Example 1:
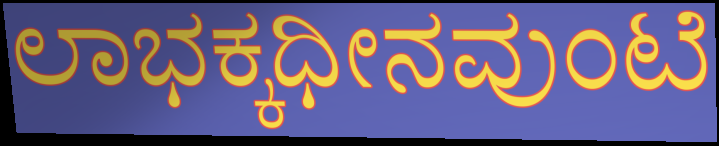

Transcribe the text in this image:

ಲಾಭಕ್ಕಧೀನವುಂಟೆ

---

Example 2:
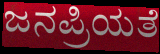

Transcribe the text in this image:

ಜನಪ್ರಿಯತೆ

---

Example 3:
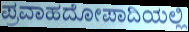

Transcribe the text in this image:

ಪ್ರವಾಹದೋಪಾದಿಯಲ್ಲಿ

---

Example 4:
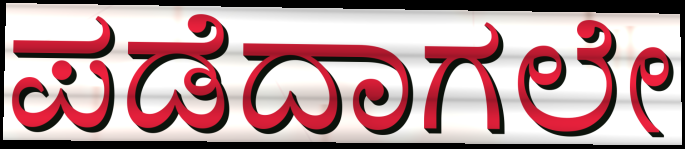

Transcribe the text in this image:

ಪಡೆದಾಗಲೇ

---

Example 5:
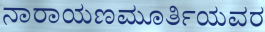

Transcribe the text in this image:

ನಾರಾಯಣಮೂರ್ತಿಯವರ